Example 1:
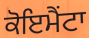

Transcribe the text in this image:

ਕੋਇਮੈਂਟਾ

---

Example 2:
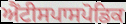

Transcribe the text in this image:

ਐਂਟੀਸਪਾਸਪੋਡਿਕ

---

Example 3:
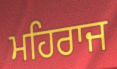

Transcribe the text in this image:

ਮਹਿਰਾਜ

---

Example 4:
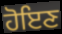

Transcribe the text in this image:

ਹੋਇਣ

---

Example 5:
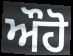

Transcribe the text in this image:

ਔਹੋ